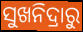
ସୁଖନିଦ୍ରାରୁ